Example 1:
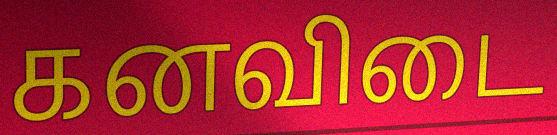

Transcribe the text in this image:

கனவிடை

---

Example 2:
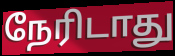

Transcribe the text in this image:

நேரிடாது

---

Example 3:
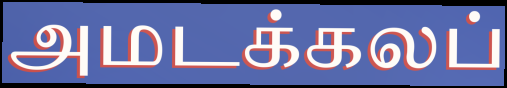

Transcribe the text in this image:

அமடக்கலப்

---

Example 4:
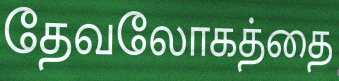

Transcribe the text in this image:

தேவலோகத்தை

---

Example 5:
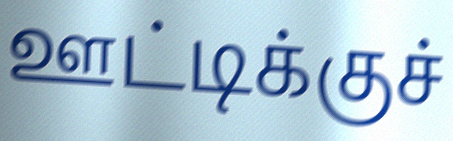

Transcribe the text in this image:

ஊட்டிக்குச்